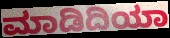
ಮಾಡಿದಿಯಾ